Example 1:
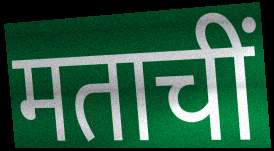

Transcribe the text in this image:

मताचीं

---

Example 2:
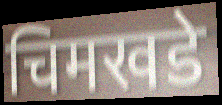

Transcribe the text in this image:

चिमखडे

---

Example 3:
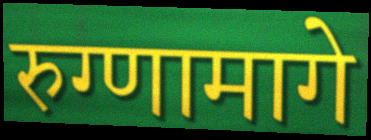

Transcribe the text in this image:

रुग्णामागे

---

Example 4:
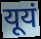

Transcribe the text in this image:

यूयं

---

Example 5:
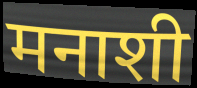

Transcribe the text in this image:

मनाशी